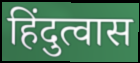
हिंदुत्वास